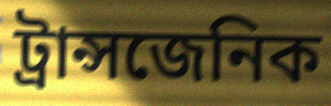
ট্রান্সজেনিক